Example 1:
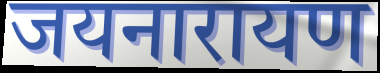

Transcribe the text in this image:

जयनारायण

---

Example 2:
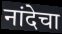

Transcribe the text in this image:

नांदेचा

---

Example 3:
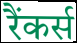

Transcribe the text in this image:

रैंकर्स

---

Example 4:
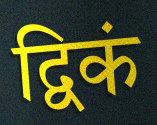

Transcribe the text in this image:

द्विकं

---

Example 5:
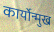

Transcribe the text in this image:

कार्योन्मुख